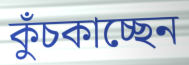
কুঁচকাচ্ছেন